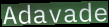
Adavade